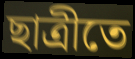
ছাত্রীতে